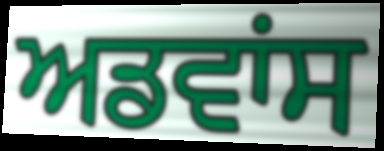
ਅਡਵਾਂਸ